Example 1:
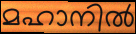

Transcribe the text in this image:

മഹാനിൽ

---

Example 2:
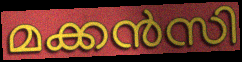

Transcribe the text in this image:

മക്കൻസി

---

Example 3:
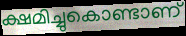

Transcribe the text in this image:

ക്ഷമിച്ചുകൊണ്ടാണ്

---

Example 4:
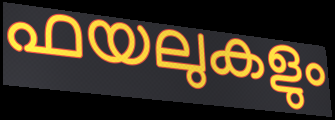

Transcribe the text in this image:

ഫയലുകളും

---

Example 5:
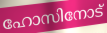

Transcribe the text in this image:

ഹോസിനോട്